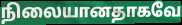
நிலையானதாகவே